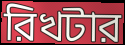
রিখটার